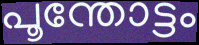
പൂന്തോട്ടം